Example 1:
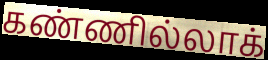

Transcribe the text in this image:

கண்ணில்லாக்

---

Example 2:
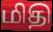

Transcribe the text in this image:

மிதி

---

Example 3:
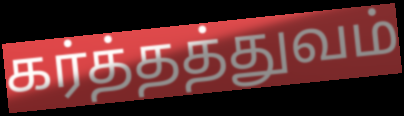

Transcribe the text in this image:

கர்த்தத்துவம்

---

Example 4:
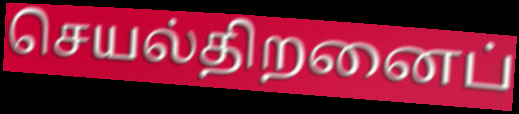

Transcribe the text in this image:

செயல்திறனைப்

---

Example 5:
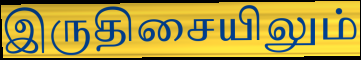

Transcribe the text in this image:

இருதிசையிலும்